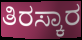
ತಿರಸ್ಕಾರ